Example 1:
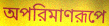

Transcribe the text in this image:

অপরিমাণরূপে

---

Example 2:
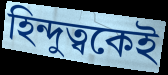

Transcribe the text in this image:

হিন্দুত্বকেই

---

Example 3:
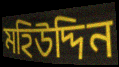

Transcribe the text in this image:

মহিউদ্দিন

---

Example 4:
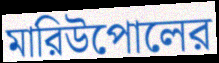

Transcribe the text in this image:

মারিউপোলের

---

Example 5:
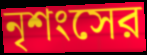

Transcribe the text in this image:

নৃশংসের